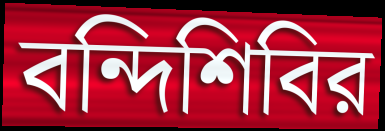
বন্দিশিবির